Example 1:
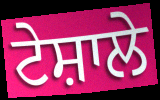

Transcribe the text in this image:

ਟੇਸ਼ਾਲੇ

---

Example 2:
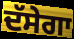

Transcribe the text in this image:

ਦੱਸੇਗਾ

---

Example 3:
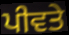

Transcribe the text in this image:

ਪੀਵਤੇ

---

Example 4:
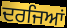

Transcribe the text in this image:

ਦਰਜਿਆਂ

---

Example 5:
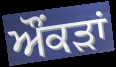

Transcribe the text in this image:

ਔਂਕੜਾਂ